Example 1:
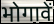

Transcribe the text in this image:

भोगावें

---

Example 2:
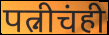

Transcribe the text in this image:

पत्नीचंही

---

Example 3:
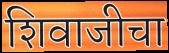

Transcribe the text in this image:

शिवाजीचा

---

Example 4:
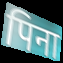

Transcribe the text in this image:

पिना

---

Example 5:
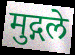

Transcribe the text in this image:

मुद्गले